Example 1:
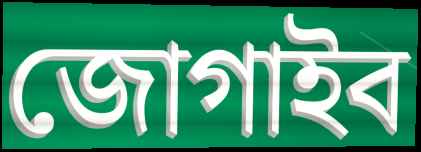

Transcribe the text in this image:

জোগাইব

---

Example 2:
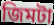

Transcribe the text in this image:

জিমটা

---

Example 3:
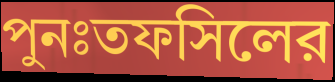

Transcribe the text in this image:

পুনঃতফসিলের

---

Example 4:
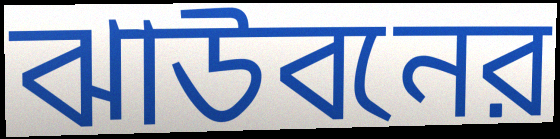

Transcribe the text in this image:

ঝাউবনের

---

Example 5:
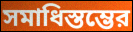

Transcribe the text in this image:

সমাধিস্তম্ভের